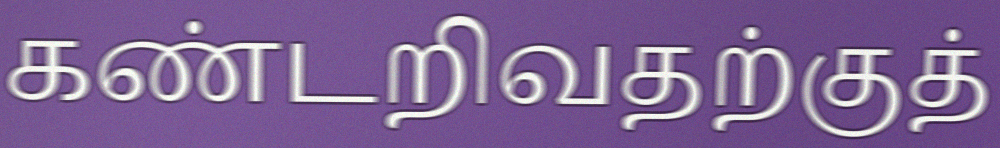
கண்டறிவதற்குத்